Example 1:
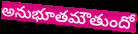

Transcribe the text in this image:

అనుభూతమౌతుందో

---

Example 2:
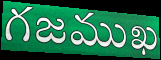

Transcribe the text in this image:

గజముఖ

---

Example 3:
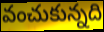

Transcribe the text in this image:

వంచుకున్నది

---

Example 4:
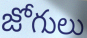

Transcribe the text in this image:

జోగులు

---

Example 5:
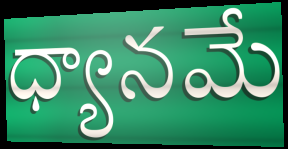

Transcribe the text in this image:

ధ్యానమే